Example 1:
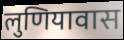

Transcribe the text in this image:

लुणियावास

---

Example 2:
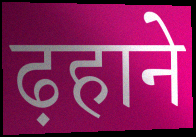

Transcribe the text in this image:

ढ़हाने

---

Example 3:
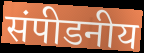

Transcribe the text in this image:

संपीडनीय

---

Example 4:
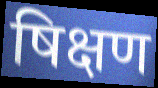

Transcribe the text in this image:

षिक्षण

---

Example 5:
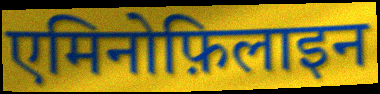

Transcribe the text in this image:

एमिनोफ़िलाइन